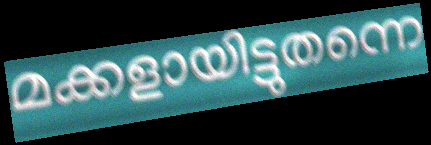
മക്കളായിട്ടുതന്നെ